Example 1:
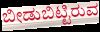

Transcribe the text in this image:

ಬೀಡುಬಿಟ್ಟಿರುವ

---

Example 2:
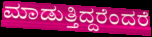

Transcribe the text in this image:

ಮಾಡುತ್ತಿದ್ದರೆಂದರೆ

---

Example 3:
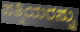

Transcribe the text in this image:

ಪತ್ನಿಯರನ್ನು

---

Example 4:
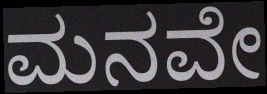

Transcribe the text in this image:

ಮನವೇ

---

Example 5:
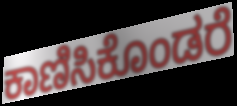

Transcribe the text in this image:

ಕಾಣಿಸಿಕೊಂಡರೆ